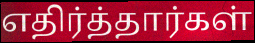
எதிர்த்தார்கள்